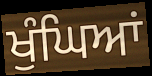
ਖੁੰਘਿਆਂ